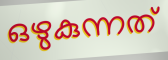
ഒഴുകുന്നത്